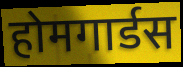
होमगार्डस